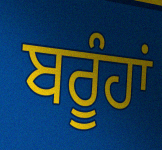
ਬਰੂੰਹਾਂ